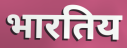
भारतिय